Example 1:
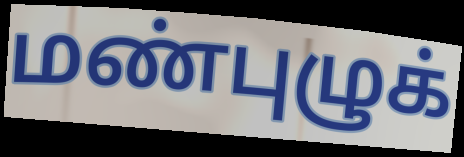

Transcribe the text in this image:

மண்புழுக்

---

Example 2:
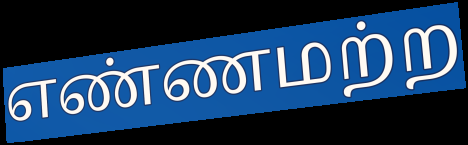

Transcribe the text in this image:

எண்ணமற்ற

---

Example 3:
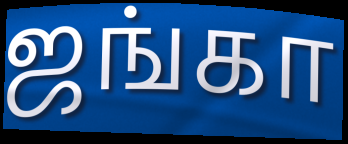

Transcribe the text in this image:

ஜங்கா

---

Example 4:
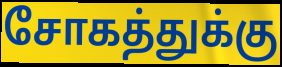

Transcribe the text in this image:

சோகத்துக்கு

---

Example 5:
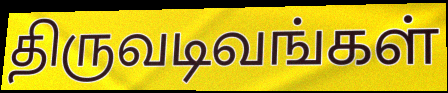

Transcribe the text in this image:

திருவடிவங்கள்